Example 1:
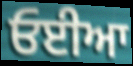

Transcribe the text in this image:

ਓਈਆ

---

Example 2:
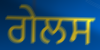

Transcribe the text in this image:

ਗੇਲਸ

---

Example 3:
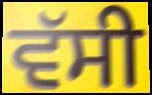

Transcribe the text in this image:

ਵੱਸੀ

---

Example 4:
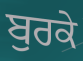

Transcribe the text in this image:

ਬੁਰਕੇ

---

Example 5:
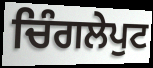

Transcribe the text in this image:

ਚਿੰਗਲੇਪੁਟ